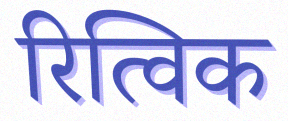
रित्विक